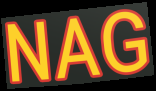
NAG